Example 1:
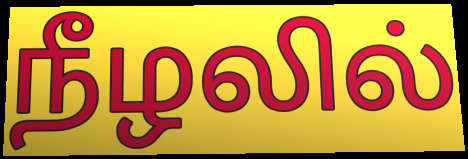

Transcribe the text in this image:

நீழலில்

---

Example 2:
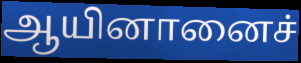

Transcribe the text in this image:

ஆயினானைச்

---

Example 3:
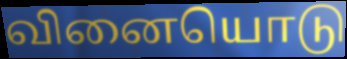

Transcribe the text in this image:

வினையொடு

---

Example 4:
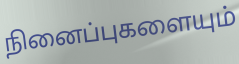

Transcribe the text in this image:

நினைப்புகளையும்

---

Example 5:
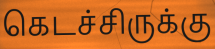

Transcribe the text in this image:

கெடச்சிருக்கு